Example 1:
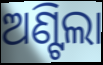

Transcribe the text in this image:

ଅଣ୍ଟିଲା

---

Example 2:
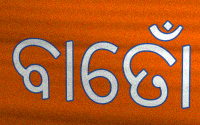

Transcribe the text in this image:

ବାତୋଁ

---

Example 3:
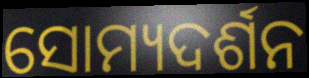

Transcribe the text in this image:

ସୋମ୍ଯଦର୍ଶନ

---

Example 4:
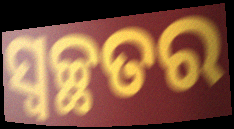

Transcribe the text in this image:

ସ୍ଵଚ୍ଛତର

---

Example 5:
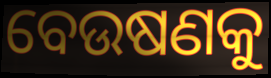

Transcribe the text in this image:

ବେଉଷଣକୁ